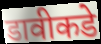
डावीकडे